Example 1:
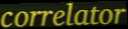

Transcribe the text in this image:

correlator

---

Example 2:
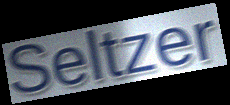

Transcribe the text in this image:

Seltzer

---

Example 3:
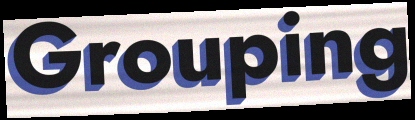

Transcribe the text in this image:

Grouping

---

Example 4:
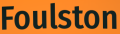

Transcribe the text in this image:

Foulston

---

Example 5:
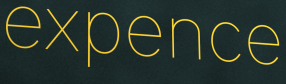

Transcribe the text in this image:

expence